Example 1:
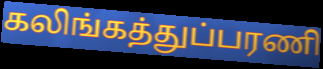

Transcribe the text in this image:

கலிங்கத்துப்பரணி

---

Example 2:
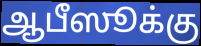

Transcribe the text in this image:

ஆபீஸூக்கு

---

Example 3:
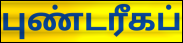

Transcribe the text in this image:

புண்டரீகப்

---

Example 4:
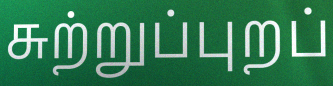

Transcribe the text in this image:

சுற்றுப்புறப்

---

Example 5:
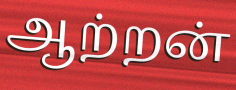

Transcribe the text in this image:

ஆற்றன்